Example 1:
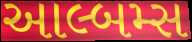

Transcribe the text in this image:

આલ્બમ્સ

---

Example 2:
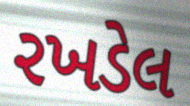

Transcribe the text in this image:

રખડેલ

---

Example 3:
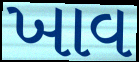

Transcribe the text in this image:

ખાવ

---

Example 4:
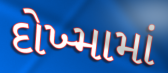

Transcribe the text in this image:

દોખ્મામાં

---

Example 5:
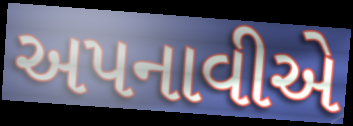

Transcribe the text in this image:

અપનાવીએ